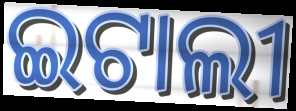
ଇଟାଲୀ